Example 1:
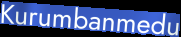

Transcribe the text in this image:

Kurumbanmedu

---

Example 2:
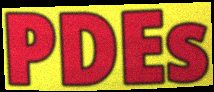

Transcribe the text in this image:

PDEs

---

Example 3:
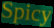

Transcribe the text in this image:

Spicy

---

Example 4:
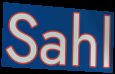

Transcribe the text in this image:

Sahl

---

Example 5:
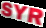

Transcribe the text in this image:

SYR